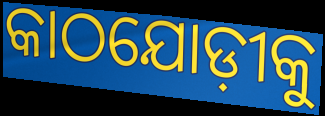
କାଠଯୋଡ଼ୀକୁ